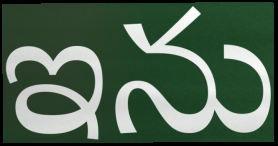
ఇను